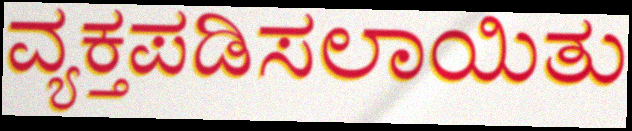
ವ್ಯಕ್ತಪಡಿಸಲಾಯಿತು